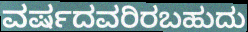
ವರ್ಷದವರಿರಬಹುದು